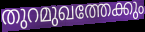
തുറമുഖത്തേക്കും